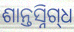
ଶାନ୍ତସ୍ନିଗ୍‌ଧ